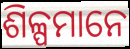
ଶିଳ୍ପମାନେ